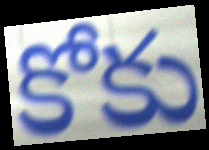
కోకు